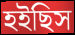
হইছিস